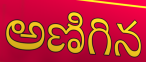
అణిగిన